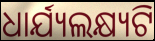
ଧାର୍ଯ୍ୟଲକ୍ଷ୍ୟଟି